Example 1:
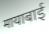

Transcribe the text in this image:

मायाबाई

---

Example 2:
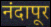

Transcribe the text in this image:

नंदापूर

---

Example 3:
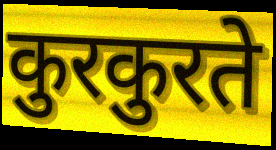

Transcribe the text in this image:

कुरकुरते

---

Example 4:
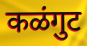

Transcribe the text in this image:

कळंगुट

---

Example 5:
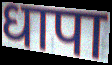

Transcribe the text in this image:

धापा